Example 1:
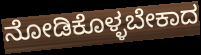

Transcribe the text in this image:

ನೋಡಿಕೊಳ್ಳಬೇಕಾದ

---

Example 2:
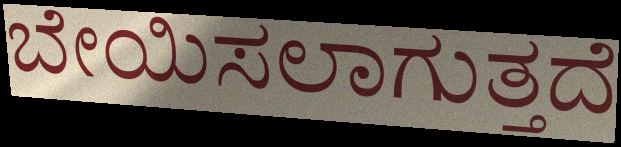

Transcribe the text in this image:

ಬೇಯಿಸಲಾಗುತ್ತದೆ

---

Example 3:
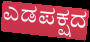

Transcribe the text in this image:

ಎಡಪಕ್ಷದ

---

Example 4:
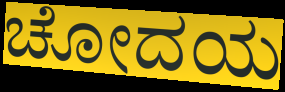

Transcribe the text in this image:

ಚೋದಯ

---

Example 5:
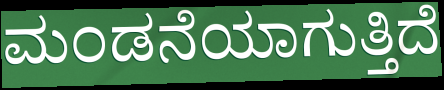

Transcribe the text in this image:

ಮಂಡನೆಯಾಗುತ್ತಿದೆ